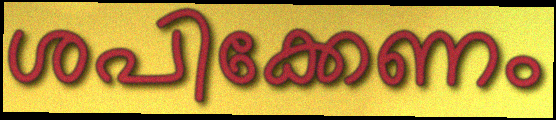
ശപിക്കേണം